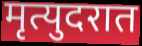
मृत्युदरात